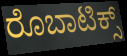
ರೊಬಾಟಿಕ್ಸ್